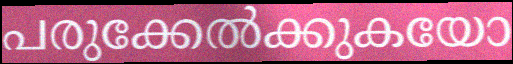
പരുക്കേൽക്കുകയോ